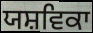
ਯਸ਼ਵਿਕਾ